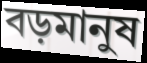
বড়মানুষ